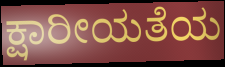
ಕ್ಷಾರೀಯತೆಯ